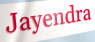
Jayendra